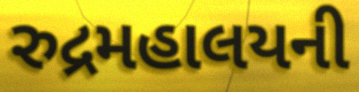
રુદ્રમહાલયની